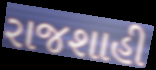
રાજશાહી